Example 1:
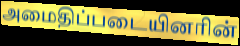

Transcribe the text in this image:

அமைதிப்படையினரின்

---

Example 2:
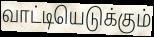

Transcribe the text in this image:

வாட்டியெடுக்கும்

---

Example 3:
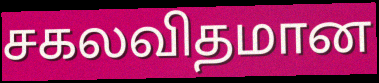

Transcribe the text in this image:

சகலவிதமான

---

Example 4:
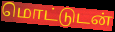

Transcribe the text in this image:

மொட்டுடன்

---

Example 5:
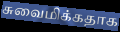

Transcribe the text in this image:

சுவைமிக்கதாக